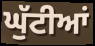
ਘੁੱਟੀਆਂ